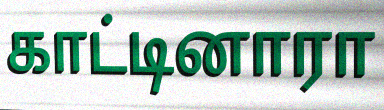
காட்டினாரா